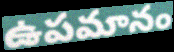
ఉపమానం